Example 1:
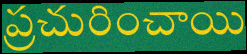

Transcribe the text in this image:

ప్రచురించాయి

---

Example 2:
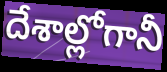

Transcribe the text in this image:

దేశాల్లోగానీ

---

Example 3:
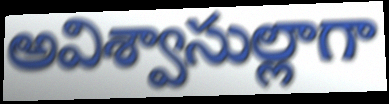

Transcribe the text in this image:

అవిశ్వాసుల్లాగా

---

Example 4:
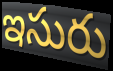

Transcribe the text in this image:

ఇసురు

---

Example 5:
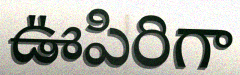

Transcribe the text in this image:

ఊపిరిగా